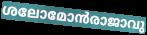
ശലോമോൻരാജാവു